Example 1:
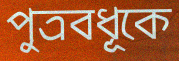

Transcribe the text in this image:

পুত্রবধূকে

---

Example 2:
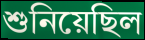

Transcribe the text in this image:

শুনিয়েছিল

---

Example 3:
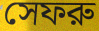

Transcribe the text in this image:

সেফরু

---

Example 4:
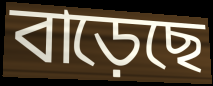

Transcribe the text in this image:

বাড়েছে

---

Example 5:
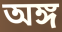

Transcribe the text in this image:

অঙ্গ